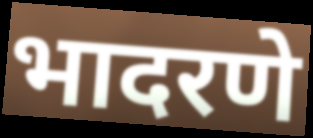
भादरणे